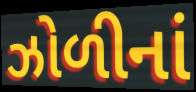
ઝોળીનાં